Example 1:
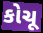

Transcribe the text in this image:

કોચૂ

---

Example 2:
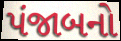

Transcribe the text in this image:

પંજાબનો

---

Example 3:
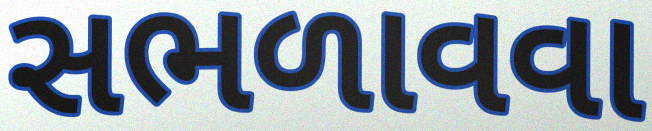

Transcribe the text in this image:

સભળાવવા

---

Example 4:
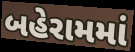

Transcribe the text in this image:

બહેરામમાં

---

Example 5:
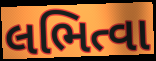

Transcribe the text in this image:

લભિત્વા